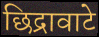
छिद्रावाटे